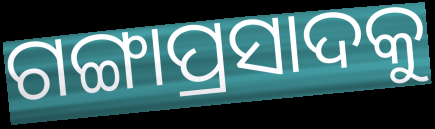
ଗଙ୍ଗାପ୍ରସାଦକୁ